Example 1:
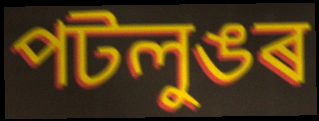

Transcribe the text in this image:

পটলুঙৰ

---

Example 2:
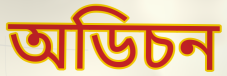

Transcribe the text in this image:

অডিচন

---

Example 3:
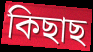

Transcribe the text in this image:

কিছাছ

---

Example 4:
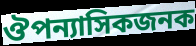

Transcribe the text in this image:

ঔপন্যাসিকজনক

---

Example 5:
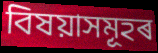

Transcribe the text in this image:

বিষয়াসমূহৰ